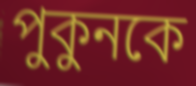
পুকুনকে